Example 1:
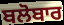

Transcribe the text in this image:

ਬਲੋਬਾਰ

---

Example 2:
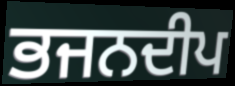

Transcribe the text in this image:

ਭਜਨਦੀਪ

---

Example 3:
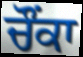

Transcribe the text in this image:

ਚੌੰਕਾ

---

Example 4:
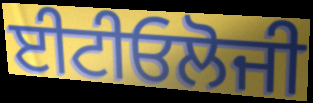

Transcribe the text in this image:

ਈਟੀਓਲੋਜੀ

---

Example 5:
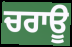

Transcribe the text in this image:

ਚਰਾਊ